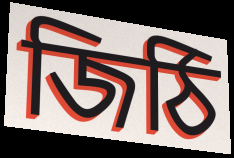
জিঠি